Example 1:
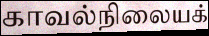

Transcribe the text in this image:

காவல்நிலையக்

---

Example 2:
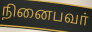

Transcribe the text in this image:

நினைபவர்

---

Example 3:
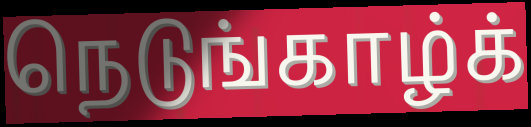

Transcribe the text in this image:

நெடுங்காழ்க்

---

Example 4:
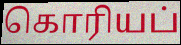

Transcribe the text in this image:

கொரியப்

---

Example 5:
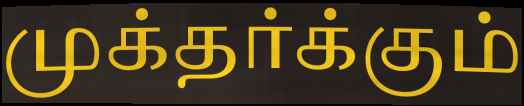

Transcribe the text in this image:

முக்தர்க்கும்